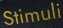
Stimuli